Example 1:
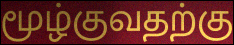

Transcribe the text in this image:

மூழ்குவதற்கு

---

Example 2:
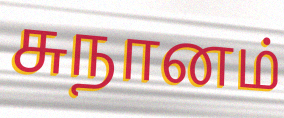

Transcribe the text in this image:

சுநானம்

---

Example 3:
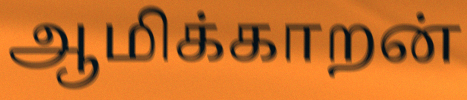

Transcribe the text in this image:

ஆமிக்காறன்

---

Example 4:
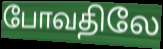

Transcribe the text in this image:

போவதிலே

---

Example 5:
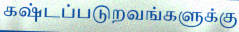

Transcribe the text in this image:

கஷ்டப்படுறவங்களுக்கு